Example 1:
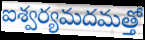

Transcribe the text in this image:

ఐశ్వర్యమదమత్తో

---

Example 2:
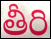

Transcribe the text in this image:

తీరి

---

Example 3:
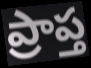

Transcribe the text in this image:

ప్రాప్త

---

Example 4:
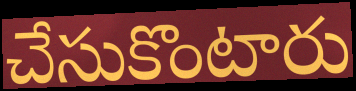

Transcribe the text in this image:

చేసుకొంటారు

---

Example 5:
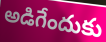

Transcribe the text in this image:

అడిగేందుకు